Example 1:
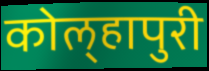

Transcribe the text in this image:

कोल्हापुरी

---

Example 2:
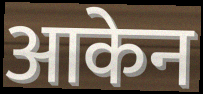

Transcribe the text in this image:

आकेन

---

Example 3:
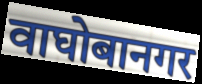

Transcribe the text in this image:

वाघोबानगर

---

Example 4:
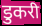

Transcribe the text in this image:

डुकरी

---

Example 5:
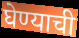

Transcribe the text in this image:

घेण्याची